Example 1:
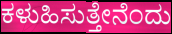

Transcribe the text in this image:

ಕಳುಹಿಸುತ್ತೇನೆಂದು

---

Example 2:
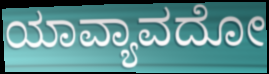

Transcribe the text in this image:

ಯಾವ್ಯಾವದೋ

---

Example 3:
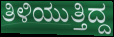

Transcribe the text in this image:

ತಿಳಿಯುತ್ತಿದ್ದ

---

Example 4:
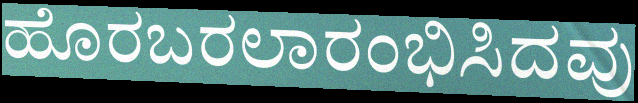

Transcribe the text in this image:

ಹೊರಬರಲಾರಂಭಿಸಿದವು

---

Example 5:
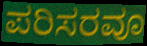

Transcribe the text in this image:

ಪರಿಸರವೂ